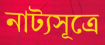
নাট্যসূত্রে